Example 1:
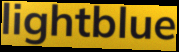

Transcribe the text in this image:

lightblue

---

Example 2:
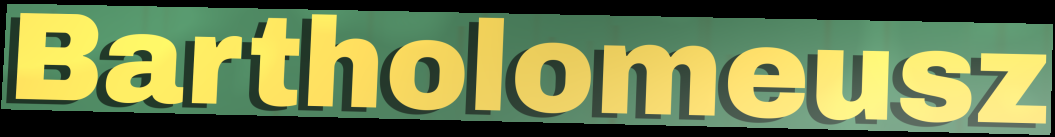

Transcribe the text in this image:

Bartholomeusz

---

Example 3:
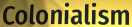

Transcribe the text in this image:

Colonialism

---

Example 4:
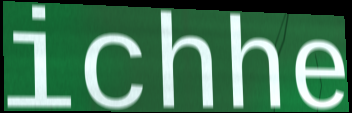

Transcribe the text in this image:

ichhe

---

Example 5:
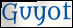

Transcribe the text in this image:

Guyot